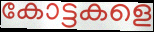
കോട്ടകളെ